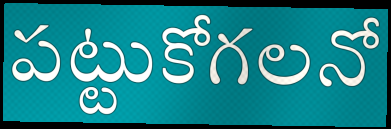
పట్టుకోగలనో